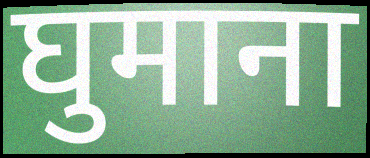
घुमाना